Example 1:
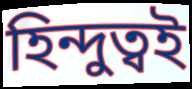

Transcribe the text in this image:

হিন্দুত্বই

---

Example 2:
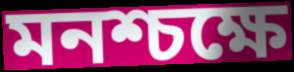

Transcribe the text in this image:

মনশ্চক্ষে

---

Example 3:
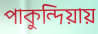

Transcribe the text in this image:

পাকুন্দিয়ায়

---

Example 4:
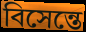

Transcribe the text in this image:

বিসেন্তে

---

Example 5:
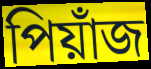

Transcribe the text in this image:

পিয়াঁজ